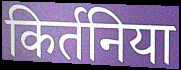
किर्तनिया